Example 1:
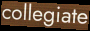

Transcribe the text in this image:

collegiate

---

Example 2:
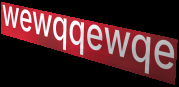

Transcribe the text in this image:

wewqqewqe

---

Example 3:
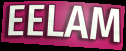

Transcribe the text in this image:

EELAM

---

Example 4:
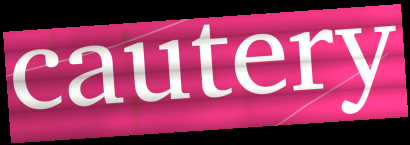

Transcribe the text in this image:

cautery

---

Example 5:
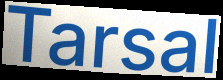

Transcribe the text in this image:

Tarsal